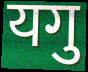
यगु